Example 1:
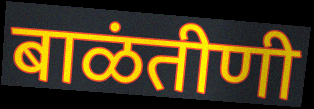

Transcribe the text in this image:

बाळंतीणी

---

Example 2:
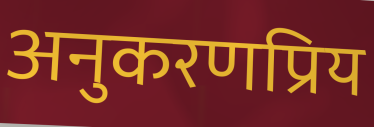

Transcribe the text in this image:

अनुकरणप्रिय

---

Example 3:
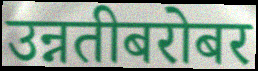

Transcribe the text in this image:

उन्नतीबरोबर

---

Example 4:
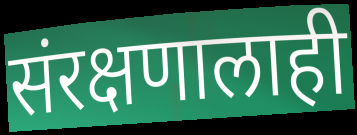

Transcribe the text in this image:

संरक्षणालाही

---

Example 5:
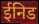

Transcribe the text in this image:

ईनिड